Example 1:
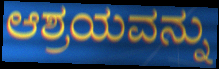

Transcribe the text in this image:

ಆಶ್ರಯವನ್ನು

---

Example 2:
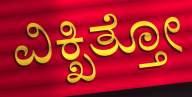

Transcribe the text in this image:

ವಿಕ್ಖಿತ್ತೋ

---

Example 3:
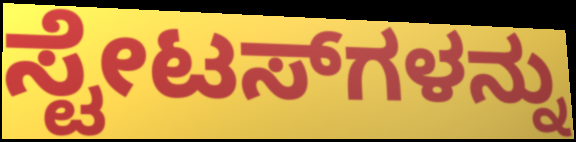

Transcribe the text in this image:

ಸ್ಟೇಟಸ್‌ಗಳನ್ನು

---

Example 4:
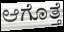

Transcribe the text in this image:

ಆಗೊತ್ತೆ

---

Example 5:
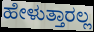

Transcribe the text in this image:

ಹೇಳುತ್ತಾರಲ್ಲ